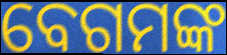
ବେଗମଙ୍କ